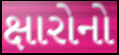
ક્ષારોનો